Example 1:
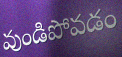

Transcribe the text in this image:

వుండిపోవడం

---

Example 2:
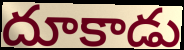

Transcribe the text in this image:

దూకాడు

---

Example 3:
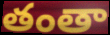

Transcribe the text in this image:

తంతా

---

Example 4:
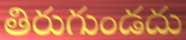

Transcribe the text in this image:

తిరుగుండదు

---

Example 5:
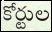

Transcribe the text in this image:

కోర్టుల